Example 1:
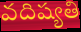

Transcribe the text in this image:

వదిష్యతి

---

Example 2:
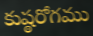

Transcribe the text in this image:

కుష్ఠరోగము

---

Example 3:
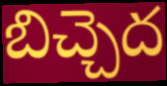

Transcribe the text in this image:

బిచ్చెద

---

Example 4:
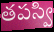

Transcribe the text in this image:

తపస్వి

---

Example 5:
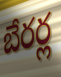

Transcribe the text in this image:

బేరర్ల